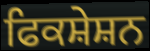
ਫਿਕਸ਼ੇਸ਼ਨ